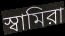
স্বামিরা